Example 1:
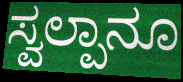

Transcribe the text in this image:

ಸ್ವಲ್ಪಾನೂ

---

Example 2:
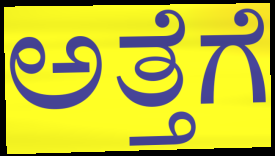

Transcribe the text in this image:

ಅತ್ತೆಗೆ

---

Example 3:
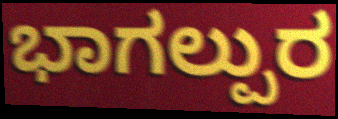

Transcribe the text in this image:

ಭಾಗಲ್ಪುರ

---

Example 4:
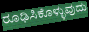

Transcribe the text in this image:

ರೂಢಿಸಿಕೊಳ್ಳುವುದು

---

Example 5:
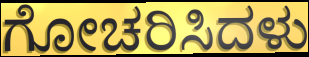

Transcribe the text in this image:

ಗೋಚರಿಸಿದಳು